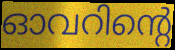
ഓവറിന്റെ